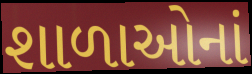
શાળાઓનાં